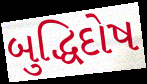
બુદ્ધિદોષ